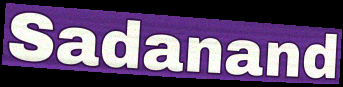
Sadanand